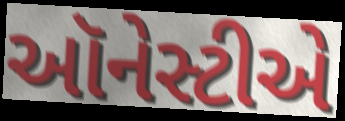
ઑનેસ્ટીએ